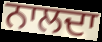
ਨਾਲਦਾ